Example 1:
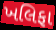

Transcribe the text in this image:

ખલિફા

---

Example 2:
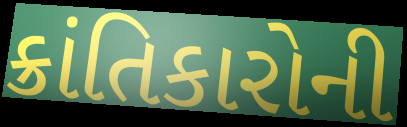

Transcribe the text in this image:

ક્રાંતિકારોની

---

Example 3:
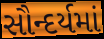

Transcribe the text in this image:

સૌન્દર્યમાં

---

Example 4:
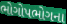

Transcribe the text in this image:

ભોગોપભોગના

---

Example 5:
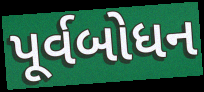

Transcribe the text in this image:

પૂર્વબોધન